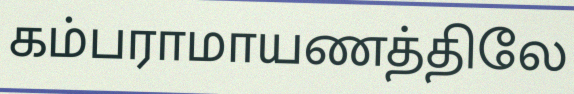
கம்பராமாயணத்திலே